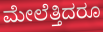
ಮೇಲೆತ್ತಿದರೂ